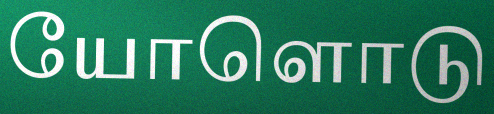
யோளொடு